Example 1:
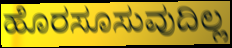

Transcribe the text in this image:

ಹೊರಸೂಸುವುದಿಲ್ಲ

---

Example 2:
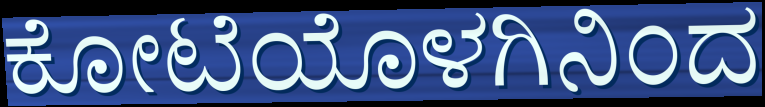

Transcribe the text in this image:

ಕೋಟೆಯೊಳಗಿನಿಂದ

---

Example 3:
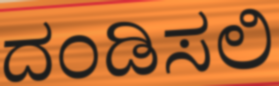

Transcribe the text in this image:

ದಂಡಿಸಲಿ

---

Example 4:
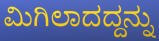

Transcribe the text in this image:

ಮಿಗಿಲಾದದ್ದನ್ನು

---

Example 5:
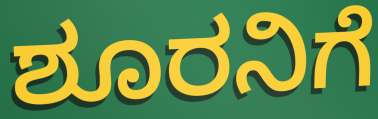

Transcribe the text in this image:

ಶೂರನಿಗೆ